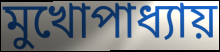
মুখোপাধ্যায়